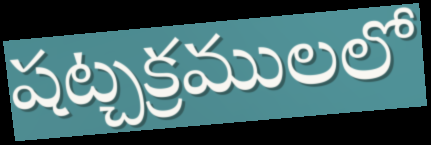
షట్చక్రములలో